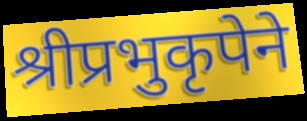
श्रीप्रभुकृपेने